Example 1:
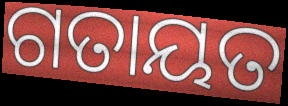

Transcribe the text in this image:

ଗତାୟତ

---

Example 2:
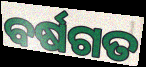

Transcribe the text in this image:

ବର୍ଷଗତ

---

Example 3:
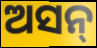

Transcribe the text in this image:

ଅସନ୍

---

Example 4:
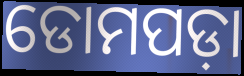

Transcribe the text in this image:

ଡୋମପଡ଼ା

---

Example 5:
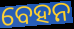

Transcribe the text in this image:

ବେହନ